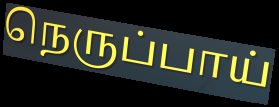
நெருப்பாய்